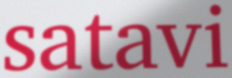
satavi